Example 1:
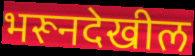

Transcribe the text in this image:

भरूनदेखील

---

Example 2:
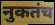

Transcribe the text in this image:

नुकतंच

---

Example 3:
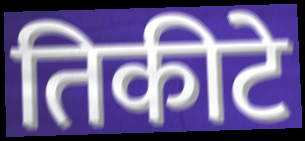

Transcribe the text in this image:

तिकीटे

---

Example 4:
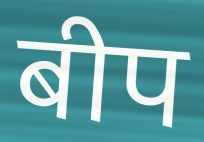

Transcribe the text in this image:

बीप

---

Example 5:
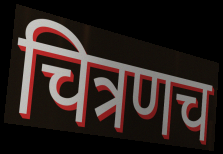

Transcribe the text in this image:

चित्रणच